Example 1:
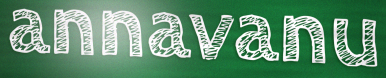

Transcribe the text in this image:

annavanu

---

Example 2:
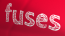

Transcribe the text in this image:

fuses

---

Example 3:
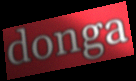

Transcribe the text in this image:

donga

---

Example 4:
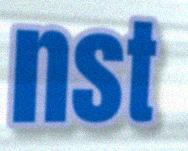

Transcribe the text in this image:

nst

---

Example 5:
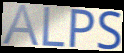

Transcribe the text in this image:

ALPS